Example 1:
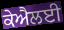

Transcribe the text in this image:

ਕੇਐਲਈ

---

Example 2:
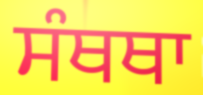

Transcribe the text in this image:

ਸੰਥਥਾ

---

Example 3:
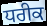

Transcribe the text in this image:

ਧਰੀਕ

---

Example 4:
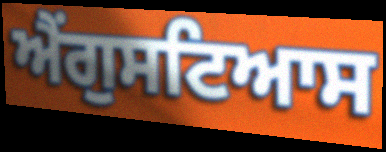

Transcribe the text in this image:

ਐਂਗੁਸਟਿਆਸ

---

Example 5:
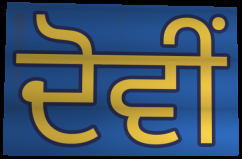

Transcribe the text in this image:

ਦੋਵੀਂ